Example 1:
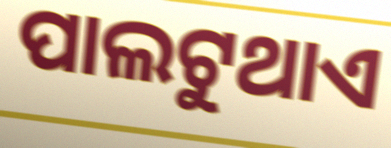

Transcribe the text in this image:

ପାଲଟୁଥାଏ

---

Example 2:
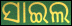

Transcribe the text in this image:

ସାଇଲ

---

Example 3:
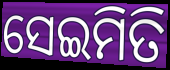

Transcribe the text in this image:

ସେଇମିତି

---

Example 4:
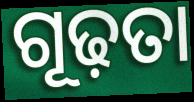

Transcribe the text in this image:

ଗୂଢ଼ତା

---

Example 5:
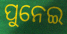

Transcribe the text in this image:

ପୁନେଇ